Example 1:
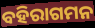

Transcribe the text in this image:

ବହିରାଗମନ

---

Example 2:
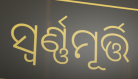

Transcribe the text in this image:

ସ୍ଵର୍ଣ୍ଣମୂର୍ତ୍ତି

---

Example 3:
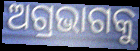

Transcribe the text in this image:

ଅଗ୍ରଭାଗକୁ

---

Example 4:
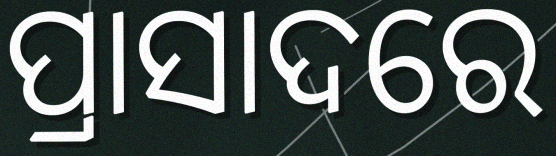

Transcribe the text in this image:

ପ୍ରାସାଦରେ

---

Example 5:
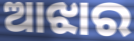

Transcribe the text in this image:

ଆଝାର